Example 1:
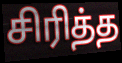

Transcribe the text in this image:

சிரித்த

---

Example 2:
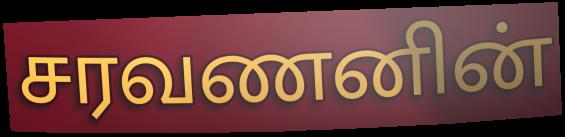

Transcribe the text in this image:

சரவணனின்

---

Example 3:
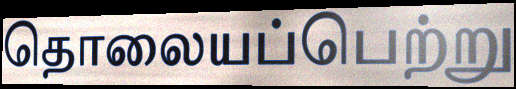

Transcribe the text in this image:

தொலையப்பெற்று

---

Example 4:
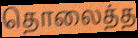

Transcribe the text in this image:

தொலைத்த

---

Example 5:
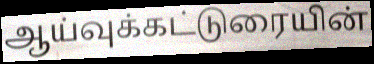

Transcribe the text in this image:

ஆய்வுக்கட்டுரையின்